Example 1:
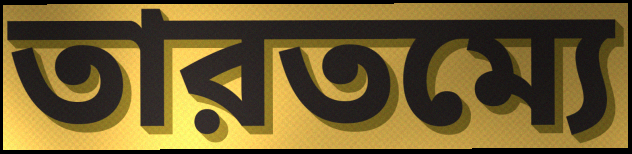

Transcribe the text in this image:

তারতম্যে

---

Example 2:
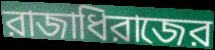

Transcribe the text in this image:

রাজাধিরাজের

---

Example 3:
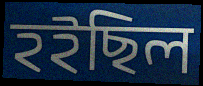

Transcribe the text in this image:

হইছিল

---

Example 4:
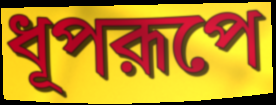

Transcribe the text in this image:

ধূপরূপে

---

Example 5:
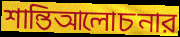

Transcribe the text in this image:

শান্তিআলোচনার